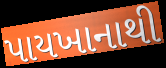
પાયખાનાથી